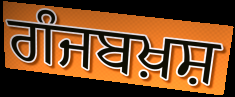
ਗੰਜਬਖ਼ਸ਼